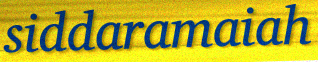
siddaramaiah